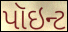
પૉઇન્ટ